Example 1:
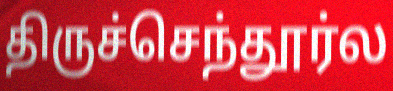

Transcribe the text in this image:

திருச்செந்தூர்ல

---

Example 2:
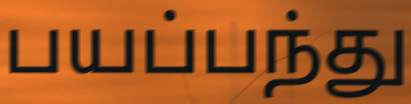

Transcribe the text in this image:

பயப்பந்து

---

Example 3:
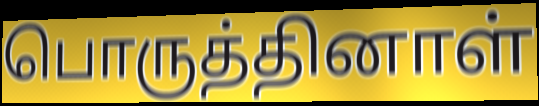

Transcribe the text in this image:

பொருத்தினாள்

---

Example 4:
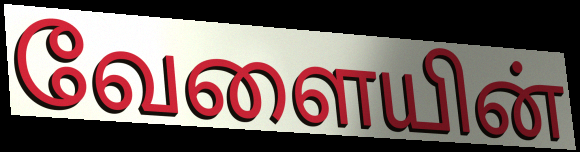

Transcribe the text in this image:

வேளையின்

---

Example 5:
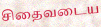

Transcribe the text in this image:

சிதைவடைய